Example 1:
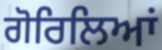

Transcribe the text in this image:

ਗੋਰਿਲਿਆਂ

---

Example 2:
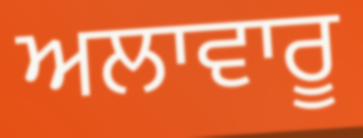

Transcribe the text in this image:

ਅਲਾਵਾਰੂ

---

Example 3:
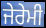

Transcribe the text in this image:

ਜੇਰੇਮੀ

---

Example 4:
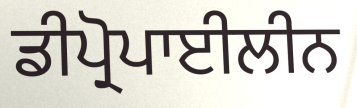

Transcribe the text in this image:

ਡੀਪ੍ਰੋਪਾਈਲੀਨ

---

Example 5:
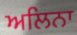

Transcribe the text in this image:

ਅਲਿਨਾ